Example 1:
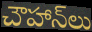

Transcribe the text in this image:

చౌహాన్‌లు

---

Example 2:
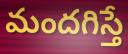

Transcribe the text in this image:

మందగిస్తే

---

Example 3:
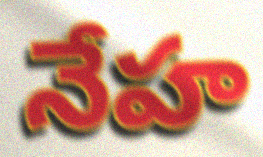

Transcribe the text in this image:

నేహ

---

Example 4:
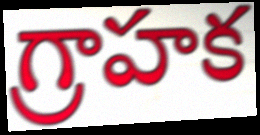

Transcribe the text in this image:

గ్రాహక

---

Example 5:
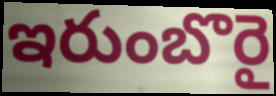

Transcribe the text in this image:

ఇరుంబొరై